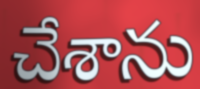
చేశాను